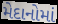
મેદાનોમાં